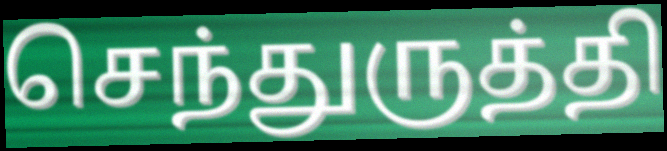
செந்துருத்தி